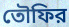
তৌফির